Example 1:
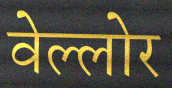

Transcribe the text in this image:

वेल्लोर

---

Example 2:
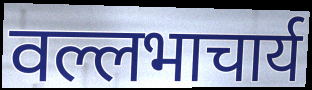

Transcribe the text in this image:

वल्‍लभाचार्य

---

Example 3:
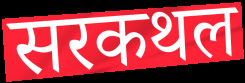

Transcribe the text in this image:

सरकथल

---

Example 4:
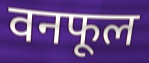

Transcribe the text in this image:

वनफूल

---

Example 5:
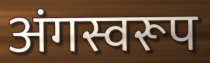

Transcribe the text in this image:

अंगस्वरूप